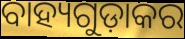
ବାହ୍ୟଗୁଡ଼ାକର